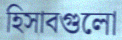
হিসাবগুলো